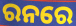
ରନରେ